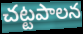
చట్టపాలన